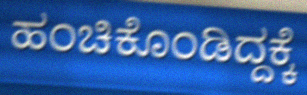
ಹಂಚಿಕೊಂಡಿದ್ದಕ್ಕೆ